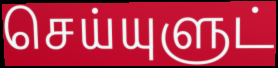
செய்யுளுட்